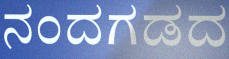
ನಂದಗಡದ